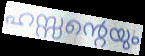
ഹസ്സന്റെയും